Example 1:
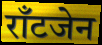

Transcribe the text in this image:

राँटजेन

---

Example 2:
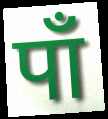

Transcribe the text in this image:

पाँ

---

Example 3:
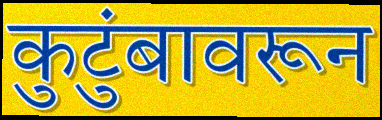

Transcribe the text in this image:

कुटुंबावरून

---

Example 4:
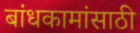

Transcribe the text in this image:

बांधकामांसाठी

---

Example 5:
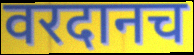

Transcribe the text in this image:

वरदानच